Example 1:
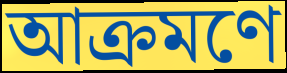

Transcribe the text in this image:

আক্রমণে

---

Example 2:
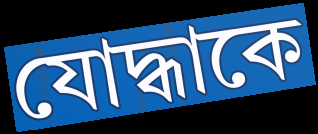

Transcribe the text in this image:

যোদ্ধাকে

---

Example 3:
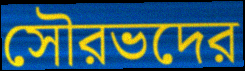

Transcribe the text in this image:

সৌরভদের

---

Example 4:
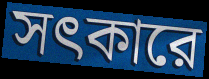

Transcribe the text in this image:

সৎকারে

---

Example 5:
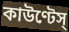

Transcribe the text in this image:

কাউণ্টেস্